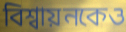
বিশ্বায়নকেও